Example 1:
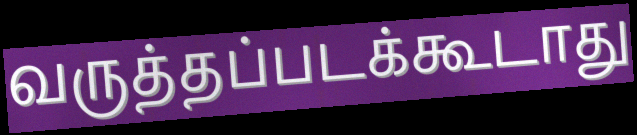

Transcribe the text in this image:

வருத்தப்படக்கூடாது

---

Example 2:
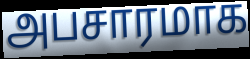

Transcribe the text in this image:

அபசாரமாக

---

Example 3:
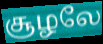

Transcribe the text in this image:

சூழலே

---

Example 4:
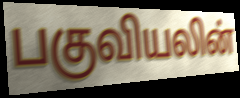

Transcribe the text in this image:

பகுவியலின்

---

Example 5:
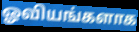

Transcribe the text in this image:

ஓவியங்களாக